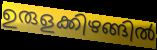
ഉരുളക്കിഴങ്ങിൽ